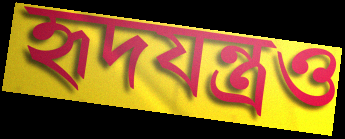
হৃদযন্ত্রও